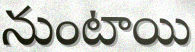
నుంటాయి